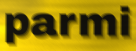
parmi